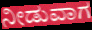
ನೀಡುವಾಗ